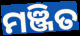
ମଞ୍ଜିତ